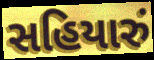
સહિયારું